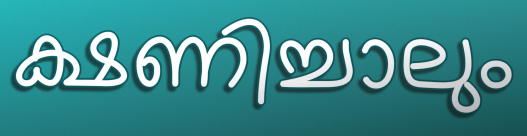
ക്ഷണിച്ചാലും